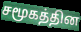
சமூகத்தின